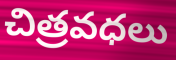
చిత్రవధలు